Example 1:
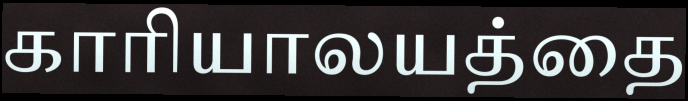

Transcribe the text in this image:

காரியாலயத்தை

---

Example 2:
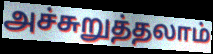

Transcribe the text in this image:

அச்சுறுத்தலாம்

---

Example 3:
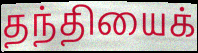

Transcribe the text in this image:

தந்தியைக்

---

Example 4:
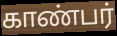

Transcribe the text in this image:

காண்பர்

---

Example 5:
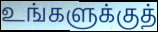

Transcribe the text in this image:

உங்களுக்குத்